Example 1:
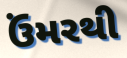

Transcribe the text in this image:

ઉંમરથી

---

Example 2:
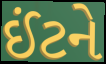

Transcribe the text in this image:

ઈંટને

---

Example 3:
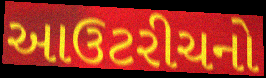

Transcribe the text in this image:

આઉટરીચનો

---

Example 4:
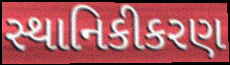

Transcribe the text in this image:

સ્થાનિકીકરણ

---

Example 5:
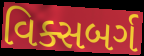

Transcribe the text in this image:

વિક્સબર્ગ